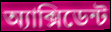
অ্যাক্সিডেন্ট